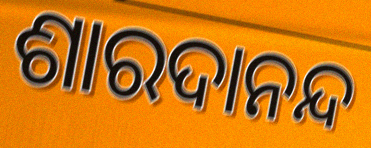
ଶାରଦାନନ୍ଦ